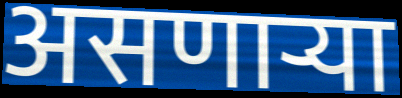
असणार्‍या